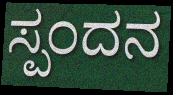
ಸ್ಪಂದನ